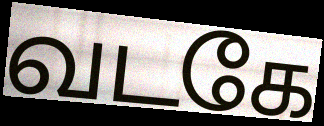
வடகே